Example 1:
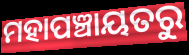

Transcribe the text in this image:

ମହାପଞ୍ଚାୟତରୁ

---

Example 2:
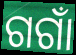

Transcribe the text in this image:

ଗଗାଁ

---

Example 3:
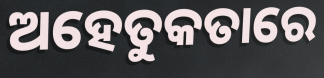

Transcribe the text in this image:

ଅହେତୁକତାରେ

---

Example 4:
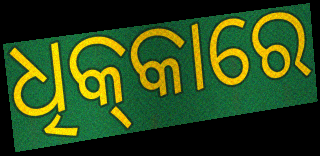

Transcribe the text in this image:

ଧିକ୍‌କାରେ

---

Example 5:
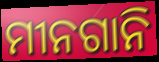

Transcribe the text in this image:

ମୀନଗାନି